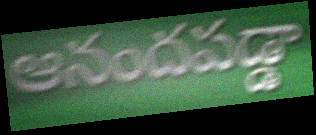
ఆనందపడ్డా